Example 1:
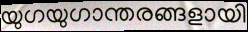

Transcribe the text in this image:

യുഗയുഗാന്തരങ്ങളായി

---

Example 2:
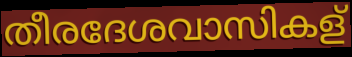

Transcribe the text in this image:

തീരദേശവാസികള്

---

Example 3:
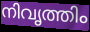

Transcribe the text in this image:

നിവൃത്തിം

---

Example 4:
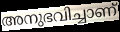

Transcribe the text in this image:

അനുഭവിച്ചാണ്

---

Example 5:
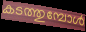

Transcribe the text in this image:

കടത്തുമ്പോൾ